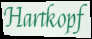
Hartkopf